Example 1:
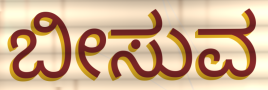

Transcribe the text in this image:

ಬೀಸುವ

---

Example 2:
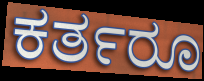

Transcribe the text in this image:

ಕರ್ತರೂ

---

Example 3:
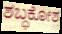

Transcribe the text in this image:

ಶಬ್ಧಕೋಶ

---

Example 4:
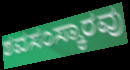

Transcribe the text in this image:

ಶವಸಂಸ್ಕಾರವು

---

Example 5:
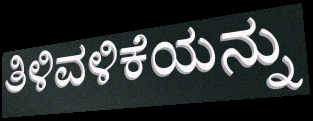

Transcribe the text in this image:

ತಿಳಿವಳಿಕೆಯನ್ನು